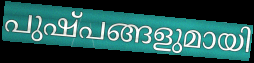
പുഷ്പങ്ങളുമായി